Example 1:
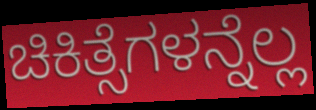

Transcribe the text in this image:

ಚಿಕಿತ್ಸೆಗಳನ್ನೆಲ್ಲ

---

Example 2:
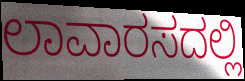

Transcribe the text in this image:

ಲಾವಾರಸದಲ್ಲಿ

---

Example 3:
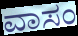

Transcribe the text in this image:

ವಾಸಂ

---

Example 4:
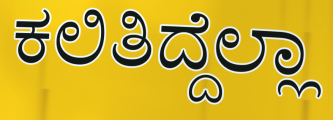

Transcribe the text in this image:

ಕಲಿತಿದ್ದೆಲ್ಲಾ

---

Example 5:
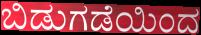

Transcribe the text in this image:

ಬಿಡುಗಡೆಯಿಂದ